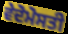
ਵੇਦੋਮੋਸਤੀ